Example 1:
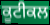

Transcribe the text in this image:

ਕੂਟੀਕਲ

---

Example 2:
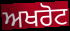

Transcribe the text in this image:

ਅਖਰੋਟ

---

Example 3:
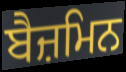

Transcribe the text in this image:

ਬੈਜ਼ਮਿਨ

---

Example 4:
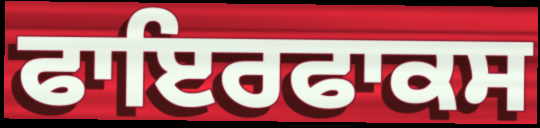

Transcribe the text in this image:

ਫਾਇਰਫਾਕਸ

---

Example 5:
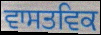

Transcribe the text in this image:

ਵਾਸਤਵਿਕ